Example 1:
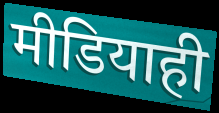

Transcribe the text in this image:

मीडियाही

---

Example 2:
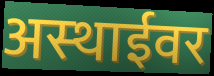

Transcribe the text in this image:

अस्थाईवर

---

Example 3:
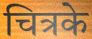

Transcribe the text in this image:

चित्रके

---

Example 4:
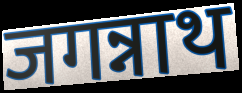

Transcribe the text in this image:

जगन्नाथ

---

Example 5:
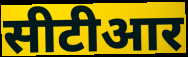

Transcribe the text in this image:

सीटीआर